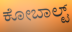
ಕೋಬಾಲ್ಟ್